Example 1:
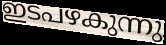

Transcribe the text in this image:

ഇടപഴകുന്നു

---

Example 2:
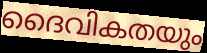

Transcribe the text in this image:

ദൈവികതയും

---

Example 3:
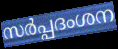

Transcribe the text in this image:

സർപ്പദംശന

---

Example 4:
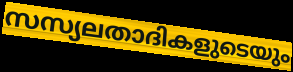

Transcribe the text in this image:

സസ്യലതാദികളുടെയും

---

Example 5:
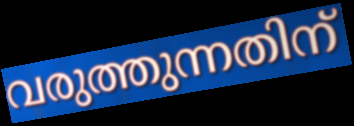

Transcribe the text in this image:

വരുത്തുന്നതിന്